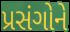
પ્રસંગોને